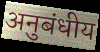
अनुबंधीय